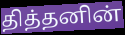
தித்தனின்